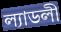
ল্যাডলী